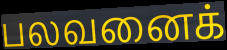
பலவனைக்